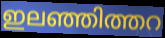
ഇലഞ്ഞിത്തറ